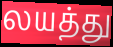
லயத்து